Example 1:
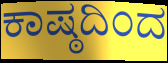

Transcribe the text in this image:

ಕಾಷ್ಠದಿಂದ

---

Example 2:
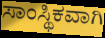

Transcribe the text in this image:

ಸಾಂಸ್ಥಿಕವಾಗಿ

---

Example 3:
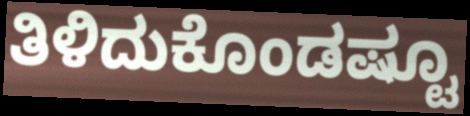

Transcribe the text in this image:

ತಿಳಿದುಕೊಂಡಷ್ಟೂ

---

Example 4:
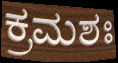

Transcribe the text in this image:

ಕ್ರಮಶಃ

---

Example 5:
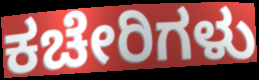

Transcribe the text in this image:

ಕಚೇರಿಗಳು